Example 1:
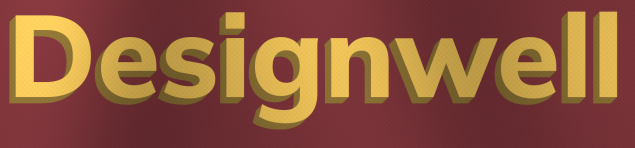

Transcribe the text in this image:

Designwell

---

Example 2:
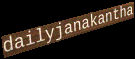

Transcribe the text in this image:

dailyjanakantha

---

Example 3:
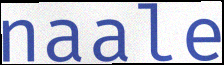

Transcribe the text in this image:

naale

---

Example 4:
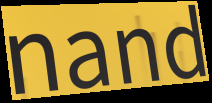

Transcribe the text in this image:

nand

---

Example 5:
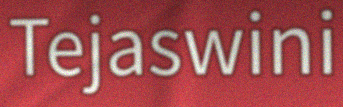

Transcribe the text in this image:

Tejaswini